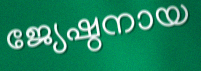
ജ്യേഷ്ഠനായ